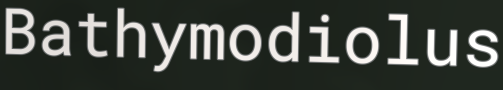
Bathymodiolus